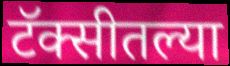
टॅक्सीतल्या